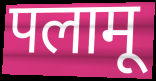
पलामू